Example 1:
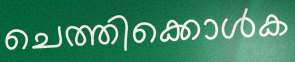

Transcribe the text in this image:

ചെത്തിക്കൊൾക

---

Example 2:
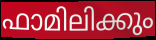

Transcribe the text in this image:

ഫാമിലിക്കും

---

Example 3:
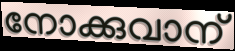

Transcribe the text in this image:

നോക്കുവാന്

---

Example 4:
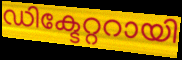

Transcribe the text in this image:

ഡിക്ടേറ്ററായി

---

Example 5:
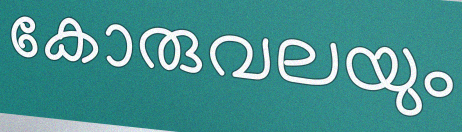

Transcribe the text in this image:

കോരുവലയും